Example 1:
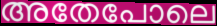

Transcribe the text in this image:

അതേപോലെ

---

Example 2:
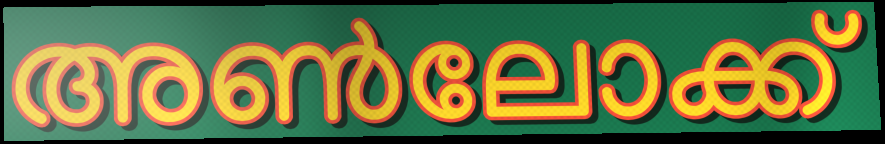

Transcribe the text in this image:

അൺലോക്ക്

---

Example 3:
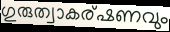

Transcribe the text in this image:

ഗുരുത്വാകര്ഷണവും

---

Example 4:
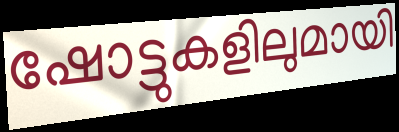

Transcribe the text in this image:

ഷോട്ടുകളിലുമായി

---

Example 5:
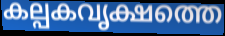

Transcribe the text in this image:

കല്പകവൃക്ഷത്തെ